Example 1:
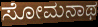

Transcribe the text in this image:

ಸೋಮನಾಥ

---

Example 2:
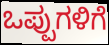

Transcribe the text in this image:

ಒಪ್ಪುಗಳಿಗೆ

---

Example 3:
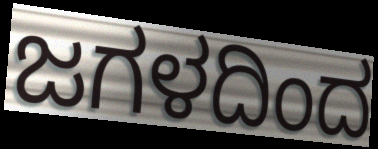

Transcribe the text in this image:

ಜಗಳದಿಂದ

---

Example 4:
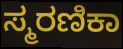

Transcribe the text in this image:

ಸ್ಮರಣಿಕಾ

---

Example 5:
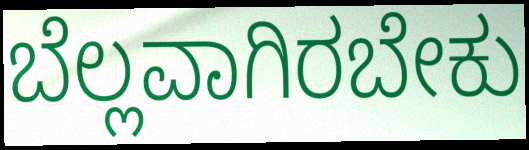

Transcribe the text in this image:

ಬೆಲ್ಲವಾಗಿರಬೇಕು